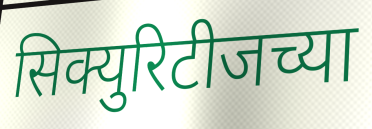
सिक्युरिटीजच्या